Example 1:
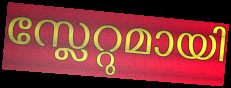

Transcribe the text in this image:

സ്ലേറ്റുമായി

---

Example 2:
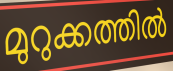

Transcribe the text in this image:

മുറുക്കത്തിൽ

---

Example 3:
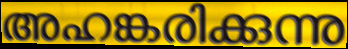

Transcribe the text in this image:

അഹങ്കരിക്കുന്നു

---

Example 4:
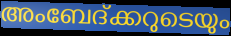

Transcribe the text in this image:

അംബേദ്ക്കറുടെയും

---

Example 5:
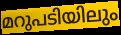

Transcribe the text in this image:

മറുപടിയിലും